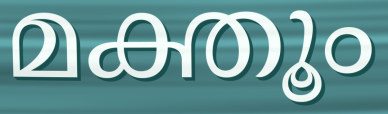
മക്തൂം